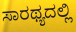
ಸಾರಥ್ಯದಲ್ಲಿ